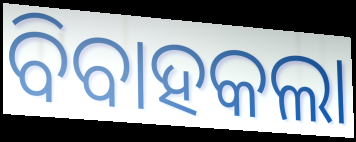
ବିବାହକଲା